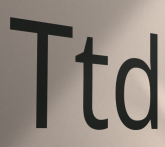
Ttd